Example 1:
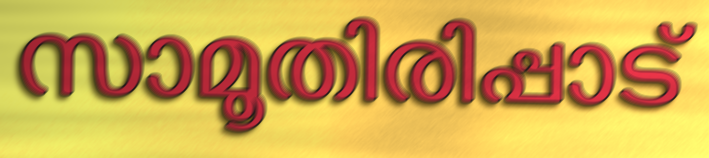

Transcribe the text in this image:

സാമൂതിരിപ്പാട്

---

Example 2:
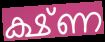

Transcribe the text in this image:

ക്ഷ്ണ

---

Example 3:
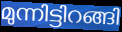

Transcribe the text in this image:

മുന്നിട്ടിറങ്ങി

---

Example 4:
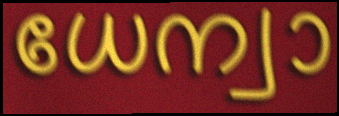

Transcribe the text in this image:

ധേന്വാ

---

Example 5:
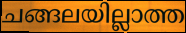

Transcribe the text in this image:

ചങ്ങലയില്ലാത്ത